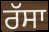
ਰੱਸਾ